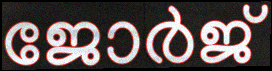
ജോർജ്